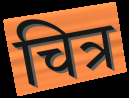
चित्र